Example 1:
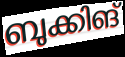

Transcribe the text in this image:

ബുക്കിങ്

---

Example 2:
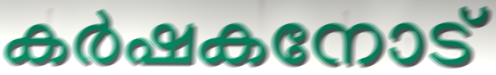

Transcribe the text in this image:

കർഷകനോട്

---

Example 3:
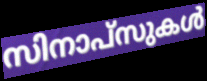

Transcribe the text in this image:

സിനാപ്സുകൾ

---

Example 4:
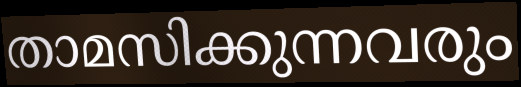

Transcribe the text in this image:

താമസിക്കുന്നവരും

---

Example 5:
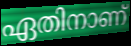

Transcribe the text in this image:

ഏതിനാണ്